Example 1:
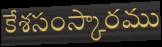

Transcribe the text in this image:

కేశసంస్కారము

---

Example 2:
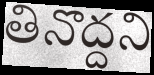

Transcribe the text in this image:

తినొద్దని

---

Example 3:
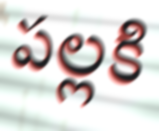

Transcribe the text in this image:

పల్లకి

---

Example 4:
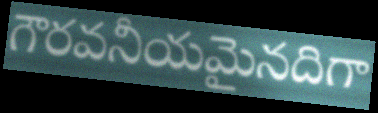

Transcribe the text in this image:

గౌరవనీయమైనదిగా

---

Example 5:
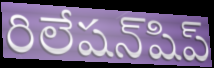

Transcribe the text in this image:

రిలేషన్‌షిప్